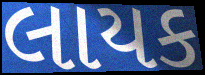
લાયક